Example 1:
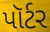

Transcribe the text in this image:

પૉર્ટર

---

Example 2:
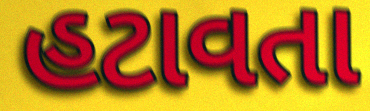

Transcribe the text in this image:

હટાવતા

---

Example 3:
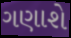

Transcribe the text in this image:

ગણાશે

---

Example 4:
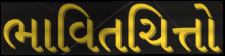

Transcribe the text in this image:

ભાવિતચિત્તો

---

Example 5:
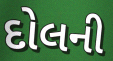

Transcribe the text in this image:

દોલની